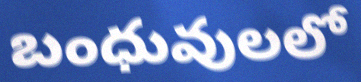
బంధువులలో